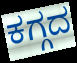
ಕಗ್ಗದ